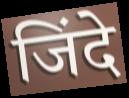
जिंदे